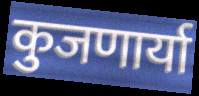
कुजणार्या